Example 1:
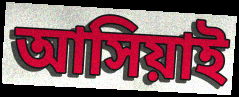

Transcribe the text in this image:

আসিয়াই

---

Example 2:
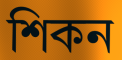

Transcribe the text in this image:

শিকন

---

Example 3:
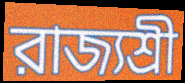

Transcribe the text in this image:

রাজ্যশ্রী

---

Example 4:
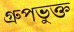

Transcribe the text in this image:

গ্রুপভুক্ত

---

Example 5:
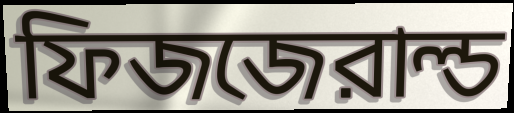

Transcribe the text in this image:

ফিজজেরাল্ড